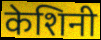
केशिनी